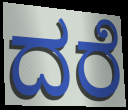
ದರೆ